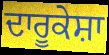
ਦਾਰੂਕੇਸ਼ਾ